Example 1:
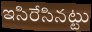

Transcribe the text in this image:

ఇసిరేసినట్టు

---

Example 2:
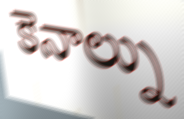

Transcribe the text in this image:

కెనాల్ను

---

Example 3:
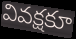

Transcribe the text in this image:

వివక్షకూ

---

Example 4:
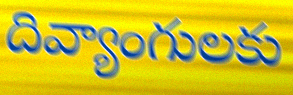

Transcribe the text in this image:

దివ్యాంగులకు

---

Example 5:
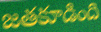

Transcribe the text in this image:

జతకూడింది